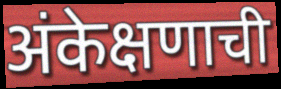
अंकेक्षणाची